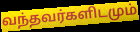
வந்தவர்களிடமும்